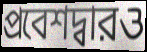
প্রবেশদ্বারও